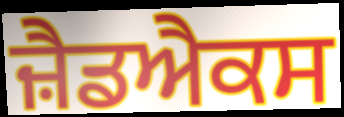
ਜ਼ੈਡਐਕਸ